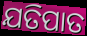
ଯତିପାତ